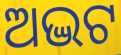
ଅଦ୍ଭଟ